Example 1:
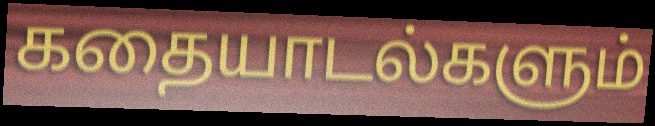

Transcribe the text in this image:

கதையாடல்களும்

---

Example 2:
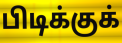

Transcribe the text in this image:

பிடிக்குக்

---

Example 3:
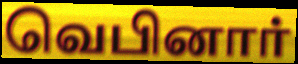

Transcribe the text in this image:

வெபினார்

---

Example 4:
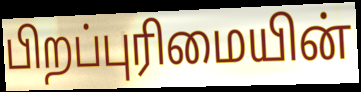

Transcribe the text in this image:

பிறப்புரிமையின்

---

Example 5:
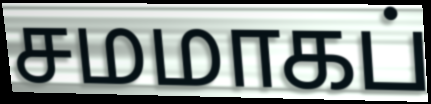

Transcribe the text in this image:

சமமாகப்